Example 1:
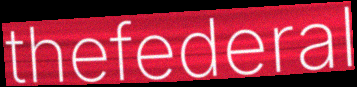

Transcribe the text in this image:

thefederal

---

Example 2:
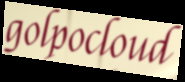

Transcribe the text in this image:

golpocloud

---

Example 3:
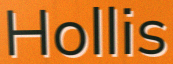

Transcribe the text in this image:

Hollis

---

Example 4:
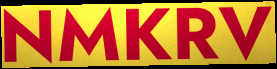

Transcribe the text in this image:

NMKRV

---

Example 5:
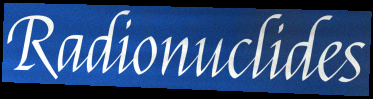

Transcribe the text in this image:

Radionuclides